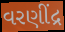
વરણીંદ્ર